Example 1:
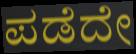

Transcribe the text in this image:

ಪಡೆದೇ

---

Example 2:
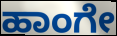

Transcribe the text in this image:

ಹಾಂಗೇ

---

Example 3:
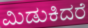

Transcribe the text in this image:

ಮಿಡುಕಿದರೆ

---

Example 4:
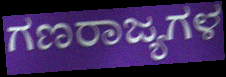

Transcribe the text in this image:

ಗಣರಾಜ್ಯಗಳ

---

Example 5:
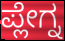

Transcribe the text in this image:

ಪ್ಲೇಗ್ನ